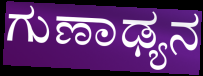
ಗುಣಾಢ್ಯನ